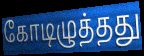
கோடிழுத்தது